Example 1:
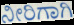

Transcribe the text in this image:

ನೀರಿಗಾಗಿ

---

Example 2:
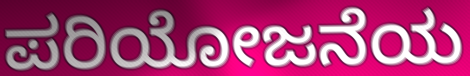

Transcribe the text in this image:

ಪರಿಯೋಜನೆಯ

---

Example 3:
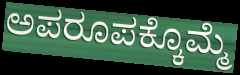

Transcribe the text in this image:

ಅಪರೂಪಕ್ಕೊಮ್ಮೆ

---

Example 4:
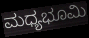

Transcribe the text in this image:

ಮಧ್ಯಭೂಮಿ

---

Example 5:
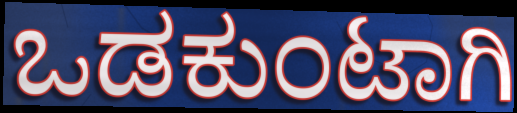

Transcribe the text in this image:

ಒಡಕುಂಟಾಗಿ